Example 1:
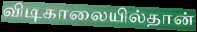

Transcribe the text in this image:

விடிகாலையில்தான்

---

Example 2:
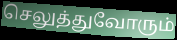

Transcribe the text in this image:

செலுத்துவோரும்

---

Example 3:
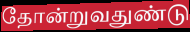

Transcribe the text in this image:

தோன்றுவதுண்டு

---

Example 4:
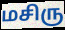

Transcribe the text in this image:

மசிரு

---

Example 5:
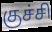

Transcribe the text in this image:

குச்சி